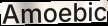
Amoebic